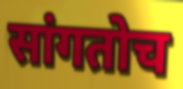
सांगतोच